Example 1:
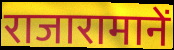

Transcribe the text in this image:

राजारामानें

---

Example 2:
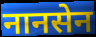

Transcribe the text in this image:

नानसेन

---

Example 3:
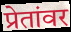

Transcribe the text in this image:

प्रेतांवर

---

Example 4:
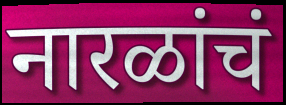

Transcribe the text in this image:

नारळांचं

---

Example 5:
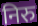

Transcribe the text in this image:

निरु